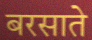
बरसाते